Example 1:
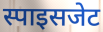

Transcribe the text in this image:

स्पाइसजेट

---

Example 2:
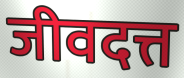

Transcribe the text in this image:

जीवदत्त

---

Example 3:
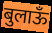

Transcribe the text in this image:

बुलाऊँ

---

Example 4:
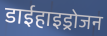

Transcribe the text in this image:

डाईहाइड्रोजन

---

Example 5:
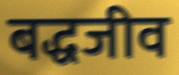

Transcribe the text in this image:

बद्धजीव